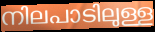
നിലപാടിലുള്ള